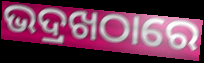
ଭଦ୍ରଖଠାରେ